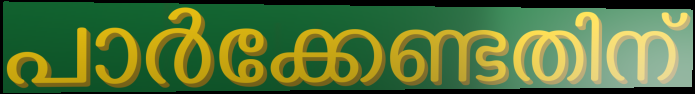
പാർക്കേണ്ടതിന്